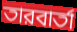
তারবার্তা